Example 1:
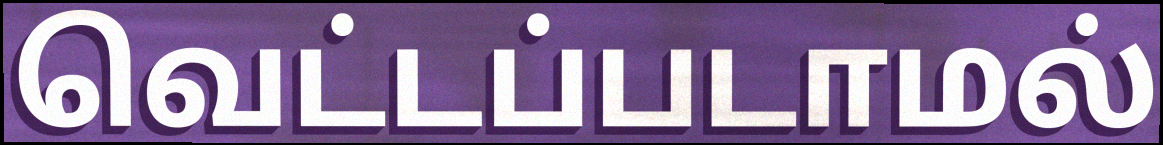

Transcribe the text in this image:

வெட்டப்படாமல்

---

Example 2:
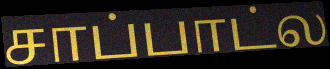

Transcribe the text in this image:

சாப்பாட்ல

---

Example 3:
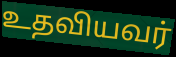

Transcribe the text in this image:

உதவியவர்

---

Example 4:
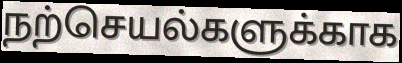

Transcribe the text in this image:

நற்செயல்களுக்காக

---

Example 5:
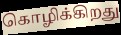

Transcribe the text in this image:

கொழிக்கிறது